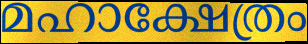
മഹാക്ഷേത്രം